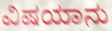
ವಿಷಯಾನು